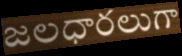
జలధారలుగా